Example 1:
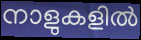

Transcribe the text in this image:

നാളുകളിൽ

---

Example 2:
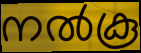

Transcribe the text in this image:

നൽകൂ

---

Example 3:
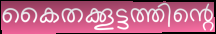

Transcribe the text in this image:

കൈതക്കൂട്ടത്തിന്റെ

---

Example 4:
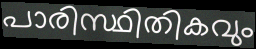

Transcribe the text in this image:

പാരിസ്ഥിതികവും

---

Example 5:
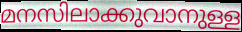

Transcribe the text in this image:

മനസിലാക്കുവാനുള്ള